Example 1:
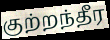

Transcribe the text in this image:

குற்றந்தீர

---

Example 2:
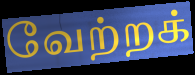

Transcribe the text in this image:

வேற்றக்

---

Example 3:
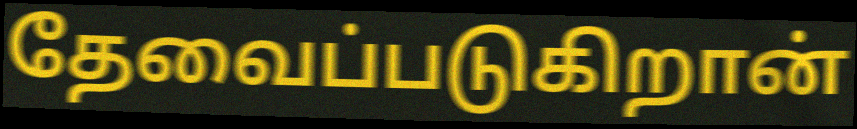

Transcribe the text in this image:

தேவைப்படுகிறான்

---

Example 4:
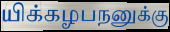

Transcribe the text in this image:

யிக்கழபநனுக்கு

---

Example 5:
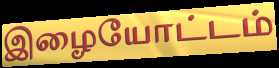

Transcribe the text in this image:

இழையோட்டம்